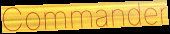
Commander